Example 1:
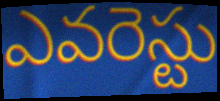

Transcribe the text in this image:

ఎవరెస్టు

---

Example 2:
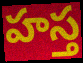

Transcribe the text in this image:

హస్త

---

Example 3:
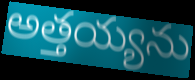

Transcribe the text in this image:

అత్తయ్యను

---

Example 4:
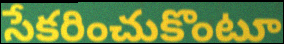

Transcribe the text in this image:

సేకరించుకొంటూ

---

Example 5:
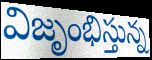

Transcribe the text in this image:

విజృంభిస్తున్న